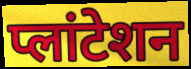
प्लांटेशन